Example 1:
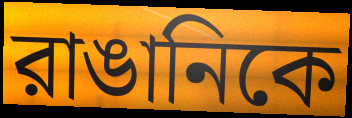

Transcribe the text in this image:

রাঙানিকে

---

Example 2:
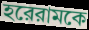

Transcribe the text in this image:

হরেরামকে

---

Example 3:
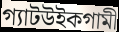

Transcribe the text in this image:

গ্যাটউইকগামী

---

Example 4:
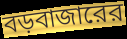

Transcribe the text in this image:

বড়বাজারের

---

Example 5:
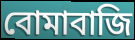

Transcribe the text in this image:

বোমাবাজি